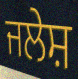
ਜਲੇਸ਼